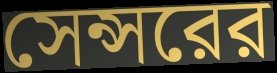
সেন্সরের